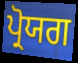
ਪ੍ਰੋਯਗ